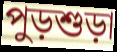
পুড়শুড়া